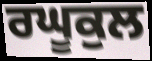
ਰਘੂਕੁਲ